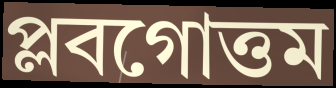
প্লবগোত্তম